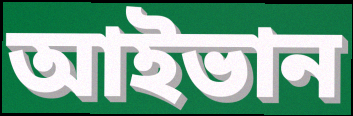
আইভান